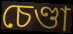
চেণ্ডা